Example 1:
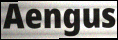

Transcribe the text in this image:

Aengus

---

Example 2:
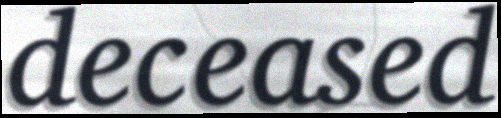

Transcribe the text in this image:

deceased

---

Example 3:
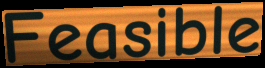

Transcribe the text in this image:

Feasible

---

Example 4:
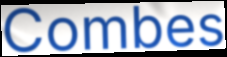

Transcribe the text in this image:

Combes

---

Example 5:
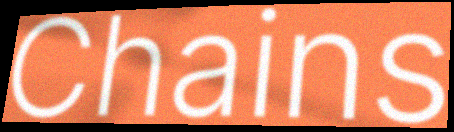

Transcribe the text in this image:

Chains